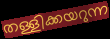
തള്ളിക്കയറുന്ന